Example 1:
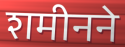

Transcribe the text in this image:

शमीनने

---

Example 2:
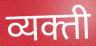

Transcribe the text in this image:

व्यक्‍ती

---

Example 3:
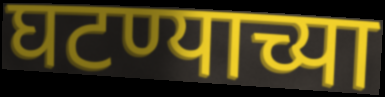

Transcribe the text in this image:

घटण्याच्या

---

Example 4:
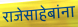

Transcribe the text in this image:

राजेसाहेबांना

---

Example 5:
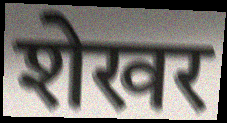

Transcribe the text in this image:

शेखर